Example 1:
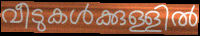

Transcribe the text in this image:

വീടുകൾക്കുള്ളിൽ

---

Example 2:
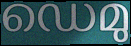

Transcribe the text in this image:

ഡെമു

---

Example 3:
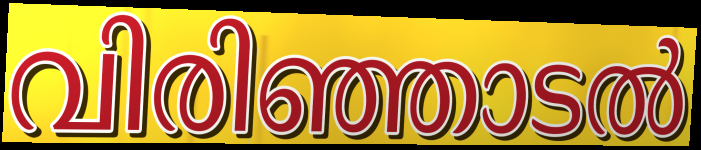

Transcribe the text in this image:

വിരിഞ്ഞാടൽ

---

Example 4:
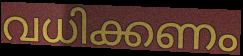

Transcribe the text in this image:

വധിക്കണം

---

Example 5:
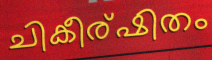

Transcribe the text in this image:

ചികീര്ഷിതം